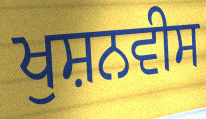
ਖੁਸ਼ਨਵੀਸ